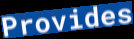
Provides